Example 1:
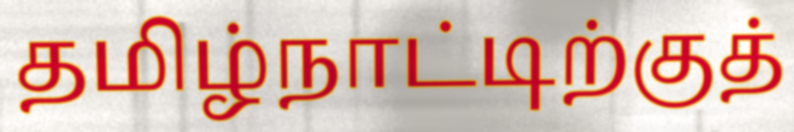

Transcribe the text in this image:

தமிழ்நாட்டிற்குத்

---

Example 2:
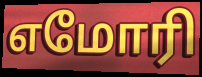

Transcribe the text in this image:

எமோரி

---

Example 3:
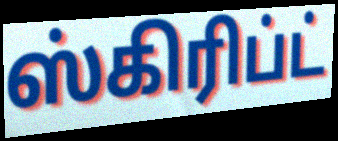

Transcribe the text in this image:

ஸ்கிரிப்ட்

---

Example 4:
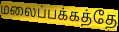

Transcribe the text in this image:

மலைப்பக்கத்தே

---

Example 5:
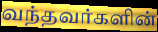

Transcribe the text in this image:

வந்தவர்களின்